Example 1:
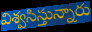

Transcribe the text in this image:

విశ్వసిస్తున్నారు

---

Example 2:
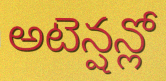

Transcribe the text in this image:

అటెన్షన్లో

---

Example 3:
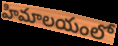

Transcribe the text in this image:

హిమాలయంలో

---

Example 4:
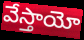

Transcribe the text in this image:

వేస్తాయో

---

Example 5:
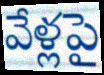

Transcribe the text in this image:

వేళ్లపై